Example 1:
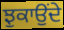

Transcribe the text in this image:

ਝੁਕਾਉੰਦੇ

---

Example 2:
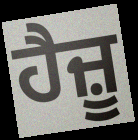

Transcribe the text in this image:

ਹੈਜ਼ੂ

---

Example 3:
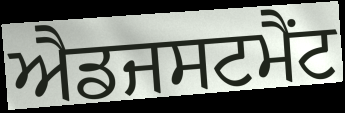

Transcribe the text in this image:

ਐਡਜਸਟਮੈਂਟ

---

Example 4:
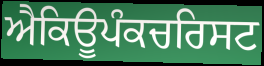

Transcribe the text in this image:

ਐਕਿਊਪੰਕਚਰਿਸਟ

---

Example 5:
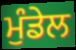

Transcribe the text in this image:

ਮੁੰਡੇਲ